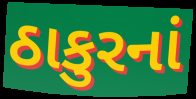
ઠાકુરનાં